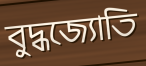
বুদ্ধজ্যোতি